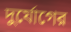
দুর্যোগের